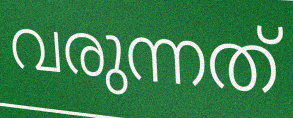
വരുന്നത്